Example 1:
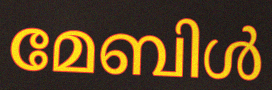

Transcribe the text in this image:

മേബിൾ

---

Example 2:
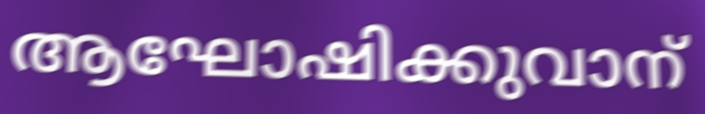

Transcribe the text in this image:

ആഘോഷിക്കുവാന്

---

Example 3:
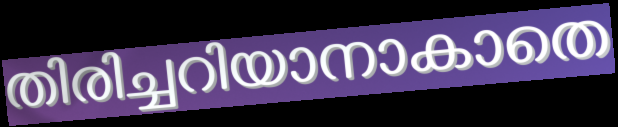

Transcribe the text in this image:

തിരിച്ചറിയാനാകാതെ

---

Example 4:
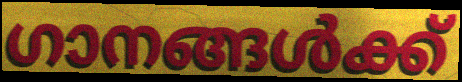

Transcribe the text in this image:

ഗാനങ്ങൾക്ക്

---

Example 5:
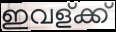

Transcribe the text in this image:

ഇവള്ക്ക്